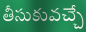
తీసుకువచ్చే